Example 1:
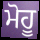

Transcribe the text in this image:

ਮੋਹੂ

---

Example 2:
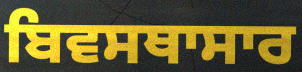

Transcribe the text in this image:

ਬਿਵਸਥਾਸਾਰ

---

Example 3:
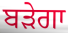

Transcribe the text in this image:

ਬੜੇਗਾ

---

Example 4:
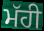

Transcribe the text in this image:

ਮੱਹੀ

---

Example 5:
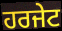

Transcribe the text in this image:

ਹਰਜੇਟ